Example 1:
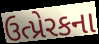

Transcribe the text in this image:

ઉત્પ્રેરકના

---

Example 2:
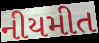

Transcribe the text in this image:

નીયમીત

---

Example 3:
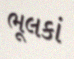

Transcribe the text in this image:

ભૂલકાં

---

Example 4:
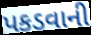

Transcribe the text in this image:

પકડવાની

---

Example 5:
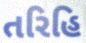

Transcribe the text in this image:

તરિહિ